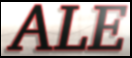
ALE